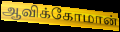
ஆவிக்கோமான்